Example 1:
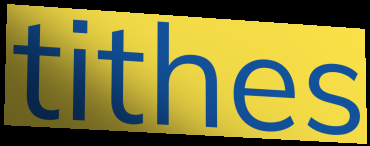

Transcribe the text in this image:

tithes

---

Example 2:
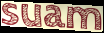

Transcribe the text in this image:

suam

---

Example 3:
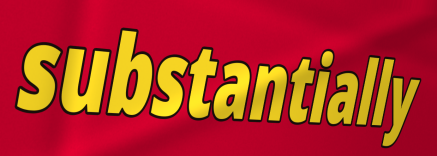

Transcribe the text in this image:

substantially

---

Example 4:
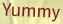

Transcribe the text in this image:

Yummy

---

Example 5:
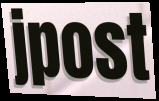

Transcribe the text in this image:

jpost